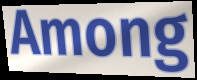
Among